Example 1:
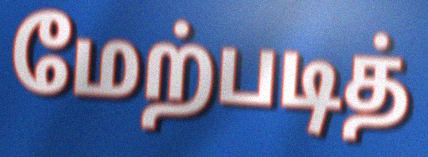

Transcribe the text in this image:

மேற்படித்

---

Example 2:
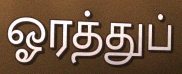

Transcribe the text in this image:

ஓரத்துப்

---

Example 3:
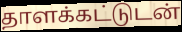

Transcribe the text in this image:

தாளக்கட்டுடன்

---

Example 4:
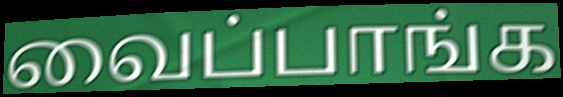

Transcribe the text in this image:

வைப்பாங்க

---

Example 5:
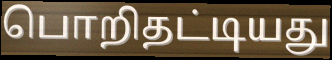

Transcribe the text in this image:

பொறிதட்டியது